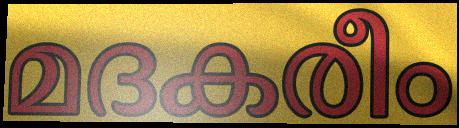
മദകരീം